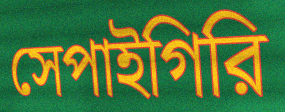
সেপাইগিরি